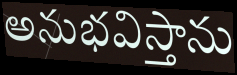
అనుభవిస్తాను